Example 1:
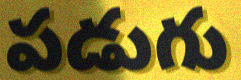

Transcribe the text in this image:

పడుగు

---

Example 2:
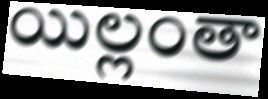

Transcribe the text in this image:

యిల్లంతా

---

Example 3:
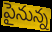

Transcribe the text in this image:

పైనున్న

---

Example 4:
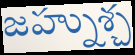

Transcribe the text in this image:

జహ్నుశ్చ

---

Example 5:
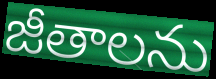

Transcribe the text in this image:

జీతాలను